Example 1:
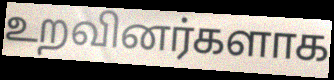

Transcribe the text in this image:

உறவினர்களாக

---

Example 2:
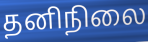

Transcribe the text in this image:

தனிநிலை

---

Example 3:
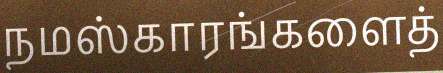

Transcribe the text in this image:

நமஸ்காரங்களைத்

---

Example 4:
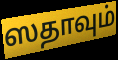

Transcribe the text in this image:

ஸதாவும்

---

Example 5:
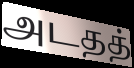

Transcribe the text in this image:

அடதத்